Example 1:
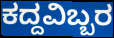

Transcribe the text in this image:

ಕದ್ದವಿಬ್ಬರ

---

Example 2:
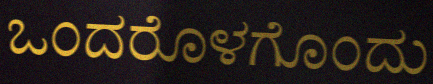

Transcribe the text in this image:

ಒಂದರೊಳಗೊಂದು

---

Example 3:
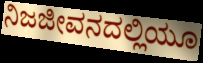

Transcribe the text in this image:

ನಿಜಜೀವನದಲ್ಲಿಯೂ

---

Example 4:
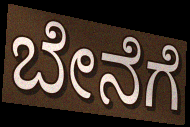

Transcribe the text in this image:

ಬೇನೆಗೆ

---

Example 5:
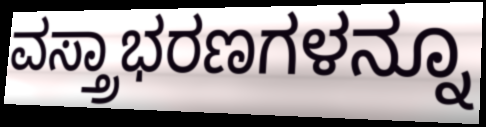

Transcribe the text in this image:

ವಸ್ತ್ರಾಭರಣಗಳನ್ನೂ